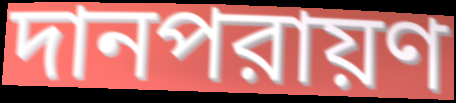
দানপরায়ণ